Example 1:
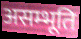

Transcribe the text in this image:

असम्भूति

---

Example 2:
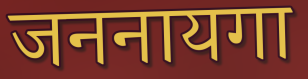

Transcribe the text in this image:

जननायगा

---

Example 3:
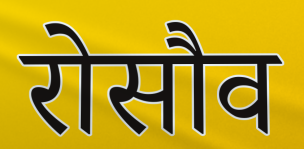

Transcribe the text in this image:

रोसौव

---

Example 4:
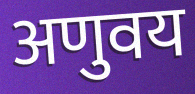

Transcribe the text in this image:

अणुवय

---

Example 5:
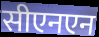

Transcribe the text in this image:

सीएनएन